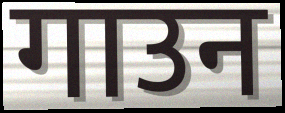
गाउन